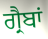
ਗ੍ਰੈਬਾਂ